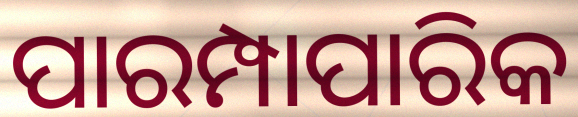
ପାରମ୍ପାପାରିକ